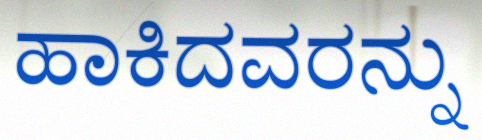
ಹಾಕಿದವರನ್ನು